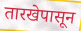
तारखेपासून